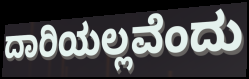
ದಾರಿಯಲ್ಲವೆಂದು